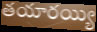
తయారయ్యి